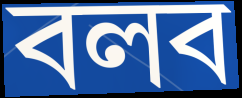
বলব